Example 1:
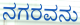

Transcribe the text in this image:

ನಗರವನು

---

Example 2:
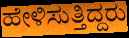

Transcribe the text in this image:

ಹೇಳಿಸುತ್ತಿದ್ದರು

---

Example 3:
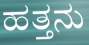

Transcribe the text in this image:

ಹತ್ತನು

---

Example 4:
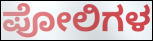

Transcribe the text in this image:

ಪೋಲಿಗಳ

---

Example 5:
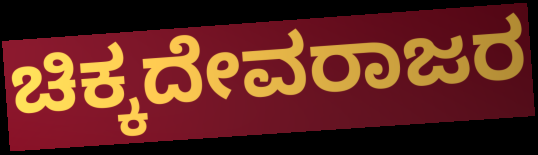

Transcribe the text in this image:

ಚಿಕ್ಕದೇವರಾಜರ